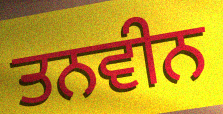
ਤਨਵੀਨ